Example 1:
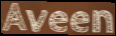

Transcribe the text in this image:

Aveen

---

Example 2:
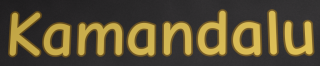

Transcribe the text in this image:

Kamandalu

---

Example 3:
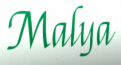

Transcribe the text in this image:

Malya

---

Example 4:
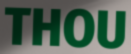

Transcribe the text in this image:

THOU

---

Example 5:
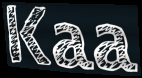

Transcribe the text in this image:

Kaa